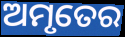
ଅମୃତେର